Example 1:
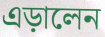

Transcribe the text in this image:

এড়ালেন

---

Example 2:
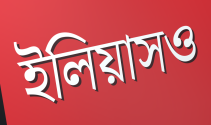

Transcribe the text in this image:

ইলিয়াসও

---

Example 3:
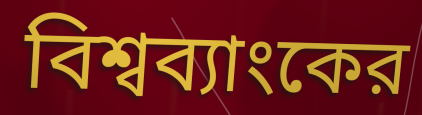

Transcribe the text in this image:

বিশ্বব্যাংকের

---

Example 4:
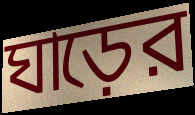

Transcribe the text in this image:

ঘাড়ের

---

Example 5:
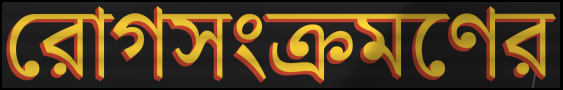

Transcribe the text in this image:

রোগসংক্রমণের